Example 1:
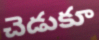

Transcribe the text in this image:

చెడుకూ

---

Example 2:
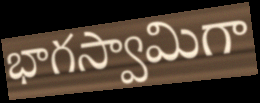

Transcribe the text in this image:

భాగస్వామిగా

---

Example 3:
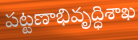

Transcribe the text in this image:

పట్టణాభివృద్ధిశాఖ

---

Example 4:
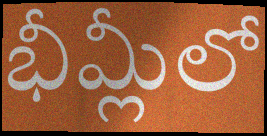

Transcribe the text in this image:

భీమ్లీలో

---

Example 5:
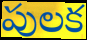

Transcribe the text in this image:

పులక